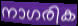
നാഗരിക